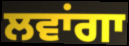
ਲਵਾਂਗਾ